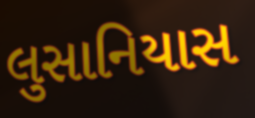
લુસાનિયાસ